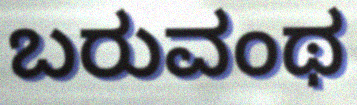
ಬರುವಂಥ